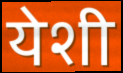
येशी